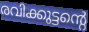
രവിക്കുട്ടന്റെ